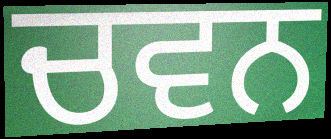
ਚਵਨ